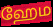
ஹேம